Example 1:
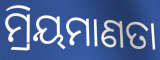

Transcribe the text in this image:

ମ୍ରିୟମାଣତା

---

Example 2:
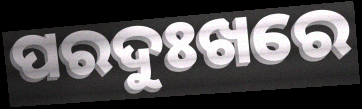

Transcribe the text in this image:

ପରଦୁଃଖରେ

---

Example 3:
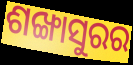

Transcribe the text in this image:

ଶଙ୍ଖାସୁରର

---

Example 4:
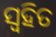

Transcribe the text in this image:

ସ୍ୱହିତ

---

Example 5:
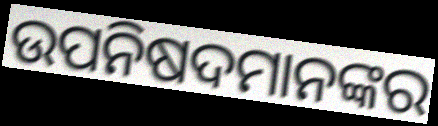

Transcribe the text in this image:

ଉପନିଷଦମାନଙ୍କର